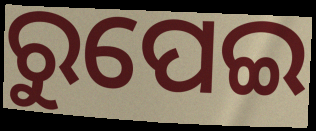
ରୁପେଇ